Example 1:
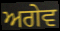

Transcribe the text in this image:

ਅਗੇਵ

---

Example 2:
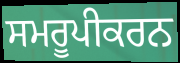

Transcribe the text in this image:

ਸਮਰੂਪੀਕਰਨ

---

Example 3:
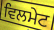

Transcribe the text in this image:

ਵਿਲਮੇਟ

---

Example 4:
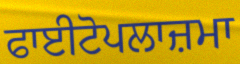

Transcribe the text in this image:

ਫਾਈਟੋਪਲਾਜ਼ਮਾ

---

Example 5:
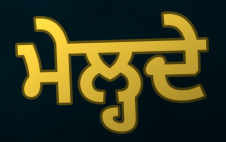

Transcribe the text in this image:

ਮੇਲ੍ਹਦੇ